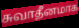
சுவாதீனமாக